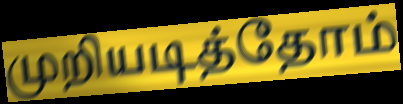
முறியடித்தோம்